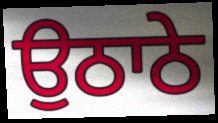
ਉਠਾਠੇ